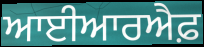
ਆਈਆਰਐਫ਼